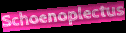
Schoenoplectus